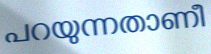
പറയുന്നതാണീ